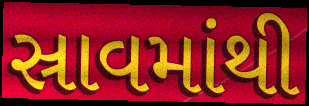
સ્રાવમાંથી